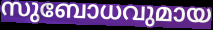
സുബോധവുമായ